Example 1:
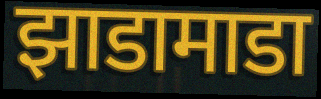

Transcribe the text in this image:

झाडामाडा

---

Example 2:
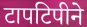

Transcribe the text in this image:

टापटिपीने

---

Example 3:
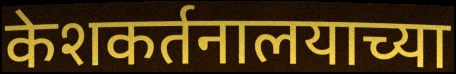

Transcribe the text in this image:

केशकर्तनालयाच्या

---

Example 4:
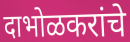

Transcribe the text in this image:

दाभोळकरांचे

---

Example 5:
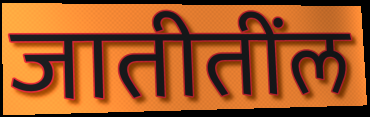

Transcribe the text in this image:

जातीतींल